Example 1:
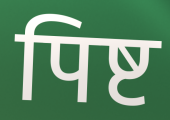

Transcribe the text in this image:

पिष्ट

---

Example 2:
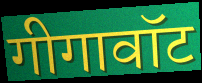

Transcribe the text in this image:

गीगावॉट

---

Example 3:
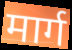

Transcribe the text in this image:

मार्ग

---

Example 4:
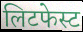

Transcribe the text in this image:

लिटफेस्ट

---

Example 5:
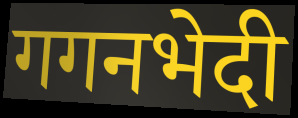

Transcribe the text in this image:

गगनभेदी